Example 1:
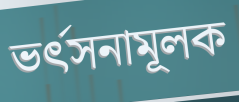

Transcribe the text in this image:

ভর্ৎসনামূলক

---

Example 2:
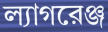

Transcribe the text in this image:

ল্যাগরেঞ্জ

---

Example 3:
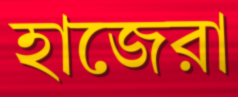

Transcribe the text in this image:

হাজেরা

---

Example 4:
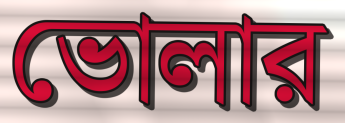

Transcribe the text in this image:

ভোলার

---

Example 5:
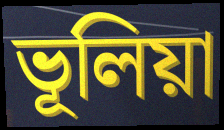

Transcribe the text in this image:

ভূলিয়া